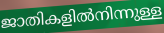
ജാതികളിൽനിന്നുള്ള